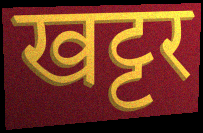
खट्टर